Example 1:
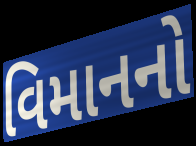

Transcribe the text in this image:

વિમાનનો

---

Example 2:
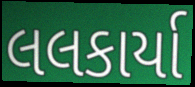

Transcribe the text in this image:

લલકાર્યા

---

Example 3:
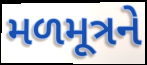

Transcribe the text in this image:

મળમૂત્રને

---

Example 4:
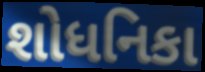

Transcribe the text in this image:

શોધનિકા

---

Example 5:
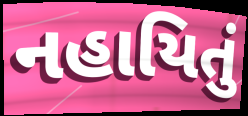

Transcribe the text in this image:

નહાયિતું